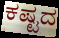
ಕಷ್ಟದ